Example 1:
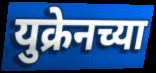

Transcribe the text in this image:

युक्रेनच्या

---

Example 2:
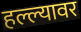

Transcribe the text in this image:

हल्ल्यावर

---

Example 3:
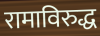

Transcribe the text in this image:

रामाविरुद्ध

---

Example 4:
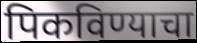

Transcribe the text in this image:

पिकविण्याचा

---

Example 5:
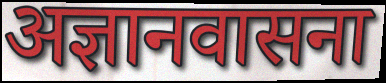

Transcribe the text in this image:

अज्ञानवासना